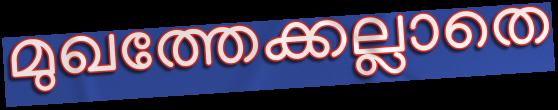
മുഖത്തേക്കല്ലാതെ